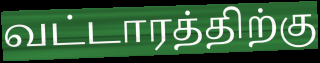
வட்டாரத்திற்கு